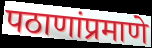
पठाणांप्रमाणे